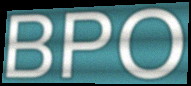
BPO